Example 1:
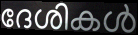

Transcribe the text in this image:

ദേശികൾ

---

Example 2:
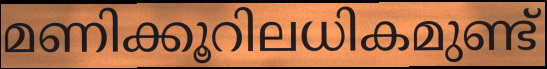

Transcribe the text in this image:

മണിക്കൂറിലധികമുണ്ട്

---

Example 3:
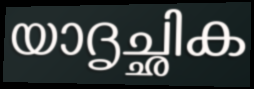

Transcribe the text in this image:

യാദൃച്ഛിക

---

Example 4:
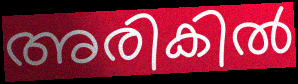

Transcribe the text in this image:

അരികിൽ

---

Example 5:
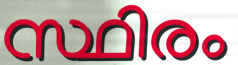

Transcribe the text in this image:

സ്ഥിരം